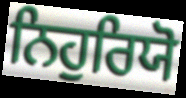
ਨਿਹੁਰਿਯੋ